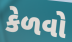
કેળવો